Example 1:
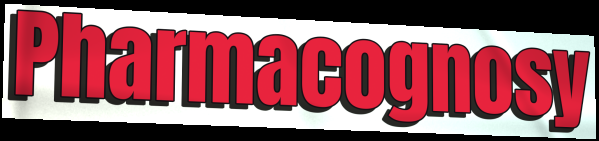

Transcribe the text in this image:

Pharmacognosy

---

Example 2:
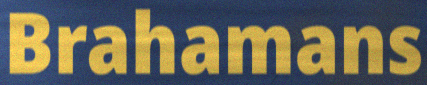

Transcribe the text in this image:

Brahamans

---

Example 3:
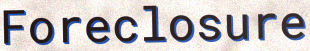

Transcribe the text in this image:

Foreclosure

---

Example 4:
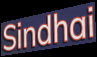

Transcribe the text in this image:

Sindhai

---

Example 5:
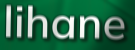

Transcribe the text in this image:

lihane